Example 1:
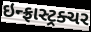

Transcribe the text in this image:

ઇન્ફ્રાસ્ટ્રક્ચર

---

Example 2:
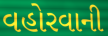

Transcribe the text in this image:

વહોરવાની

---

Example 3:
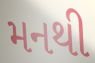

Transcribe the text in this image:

મનથી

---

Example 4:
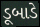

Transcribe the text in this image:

ડૂબાડે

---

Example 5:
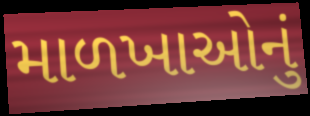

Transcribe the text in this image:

માળખાઓનું